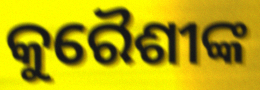
କୁରୈଶୀଙ୍କ